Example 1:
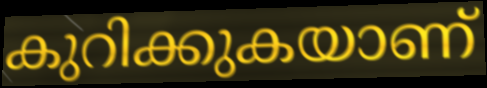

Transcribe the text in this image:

കുറിക്കുകയാണ്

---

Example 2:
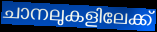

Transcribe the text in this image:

ചാനലുകളിലേക്ക്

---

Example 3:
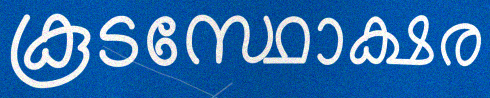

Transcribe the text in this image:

കൂടസ്ഥോക്ഷര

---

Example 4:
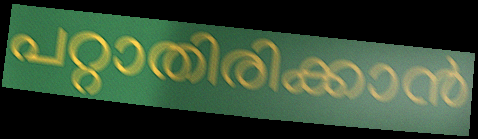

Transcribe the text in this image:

പറ്റാതിരിക്കാൻ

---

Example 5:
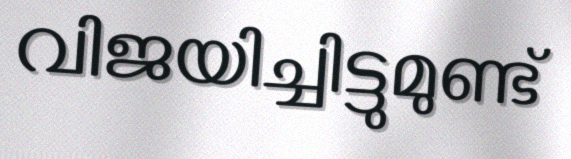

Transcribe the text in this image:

വിജയിച്ചിട്ടുമുണ്ട്